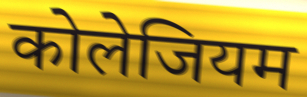
कोलेजियम